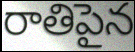
రాతిపైన